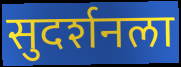
सुदर्शनला